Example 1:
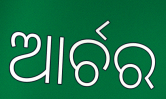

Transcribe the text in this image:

ଆର୍ଚର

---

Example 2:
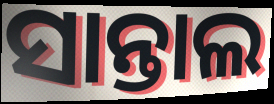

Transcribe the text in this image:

ସାନ୍ତାଲ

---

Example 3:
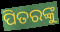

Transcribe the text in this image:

ପିତରଙ୍କୁ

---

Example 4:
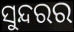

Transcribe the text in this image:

ସୁନ୍ଦରର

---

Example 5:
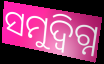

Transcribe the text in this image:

ସମୁଦ୍ବିଗ୍ନ